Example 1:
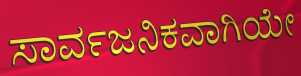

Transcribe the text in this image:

ಸಾರ್ವಜನಿಕವಾಗಿಯೇ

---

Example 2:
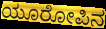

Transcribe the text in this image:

ಯೂರೋಪಿನ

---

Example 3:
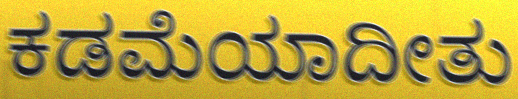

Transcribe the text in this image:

ಕಡಮೆಯಾದೀತು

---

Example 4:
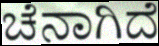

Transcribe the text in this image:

ಚೆನಾಗಿದೆ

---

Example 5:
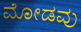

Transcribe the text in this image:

ಮೋಡವು